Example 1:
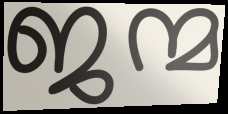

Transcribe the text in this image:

ജന്മ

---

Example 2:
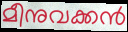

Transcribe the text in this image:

മീനുവക്കൻ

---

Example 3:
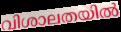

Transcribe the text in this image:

വിശാലതയിൽ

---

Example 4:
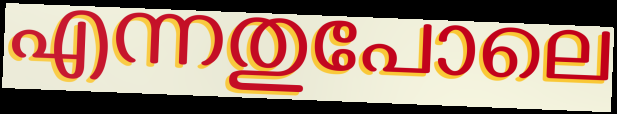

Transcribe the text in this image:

എന്നതുപോലെ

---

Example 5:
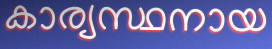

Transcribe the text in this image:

കാര്യസ്ഥനായ